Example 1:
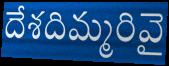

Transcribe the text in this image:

దేశదిమ్మరివై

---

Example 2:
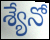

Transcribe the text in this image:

శ్యేనో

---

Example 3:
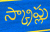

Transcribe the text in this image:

స్క్రాప్లు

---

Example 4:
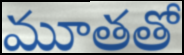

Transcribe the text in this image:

మూతతో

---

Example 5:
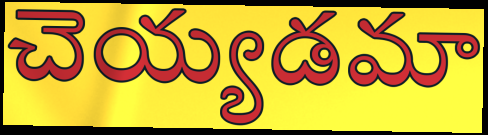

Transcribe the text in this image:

చెయ్యడమా